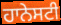
ਹਾਨੇਸਟੀ